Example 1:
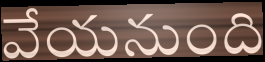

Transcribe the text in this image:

వేయనుంది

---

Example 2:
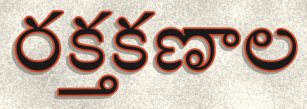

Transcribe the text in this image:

రక్తకణాల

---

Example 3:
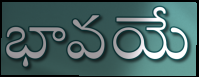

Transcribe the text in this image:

భావయే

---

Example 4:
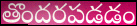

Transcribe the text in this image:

తొందరపడడం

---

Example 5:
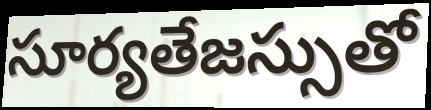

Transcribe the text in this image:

సూర్యతేజస్సుతో